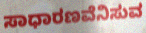
ಸಾಧಾರಣವೆನಿಸುವ